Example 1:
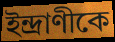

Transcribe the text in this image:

ইন্দ্রাণীকে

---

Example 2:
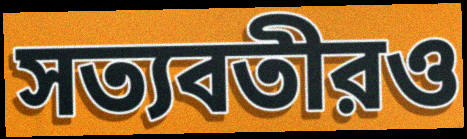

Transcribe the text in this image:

সত্যবতীরও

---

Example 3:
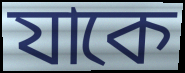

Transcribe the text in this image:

যাকে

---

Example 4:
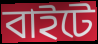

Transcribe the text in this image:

বাইটে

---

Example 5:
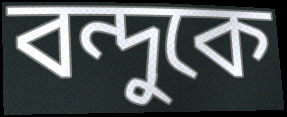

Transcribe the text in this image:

বন্দুকে